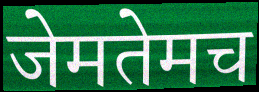
जेमतेमच